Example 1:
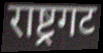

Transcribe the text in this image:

राष्ट्रगट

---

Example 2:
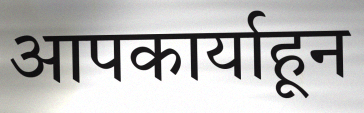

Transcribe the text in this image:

आपकार्याहून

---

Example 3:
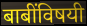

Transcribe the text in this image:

बाबींविषयी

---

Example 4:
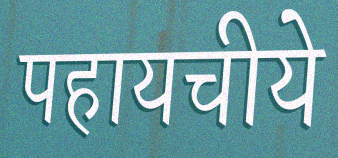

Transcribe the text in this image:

पहायचीये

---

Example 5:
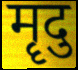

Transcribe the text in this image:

मॄदु